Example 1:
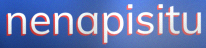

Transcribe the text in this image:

nenapisitu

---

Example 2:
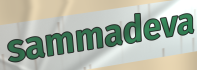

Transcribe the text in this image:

sammadeva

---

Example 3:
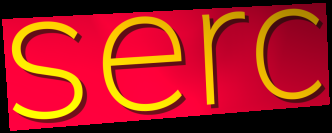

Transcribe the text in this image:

serc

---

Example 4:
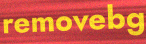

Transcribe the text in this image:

removebg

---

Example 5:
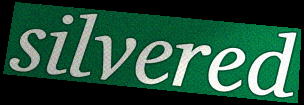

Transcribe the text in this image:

silvered